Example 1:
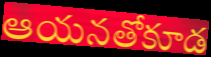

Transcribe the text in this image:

ఆయనతోకూడ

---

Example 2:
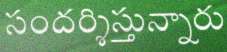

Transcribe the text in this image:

సందర్శిస్తున్నారు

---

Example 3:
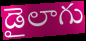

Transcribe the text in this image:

డైలాగు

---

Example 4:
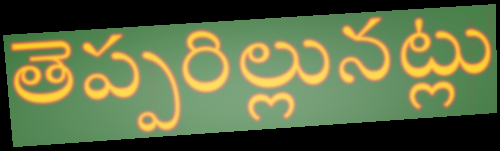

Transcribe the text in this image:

తెప్పరిల్లునట్లు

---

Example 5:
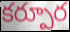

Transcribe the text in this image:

కర్పూర